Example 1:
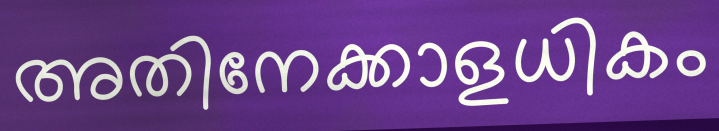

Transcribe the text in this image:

അതിനേക്കാളധികം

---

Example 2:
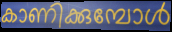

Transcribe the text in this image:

കാണിക്കുമ്പോൾ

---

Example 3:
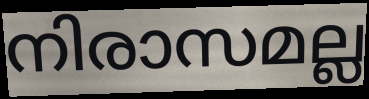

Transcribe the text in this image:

നിരാസമല്ല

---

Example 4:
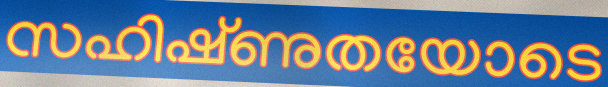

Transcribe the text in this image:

സഹിഷ്‌ണുതയോടെ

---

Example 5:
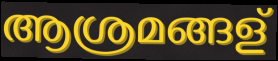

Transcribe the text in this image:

ആശ്രമങ്ങള്